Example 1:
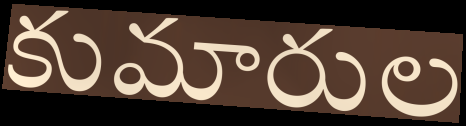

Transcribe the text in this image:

కుమారుల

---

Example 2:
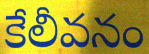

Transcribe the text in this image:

కేలీవనం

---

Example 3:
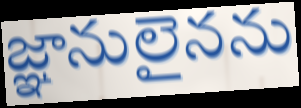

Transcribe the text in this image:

జ్ఞానులైనను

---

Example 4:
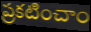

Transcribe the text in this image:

ప్రకటించాం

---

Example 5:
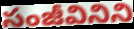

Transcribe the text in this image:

సంజీవినిని